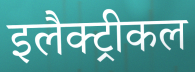
इलैक्ट्रीकल